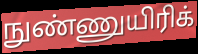
நுண்ணுயிரிக்